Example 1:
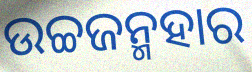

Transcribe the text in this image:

ଉଚ୍ଚଜନ୍ମହାର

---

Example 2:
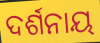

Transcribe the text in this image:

ଦର୍ଶନାୟ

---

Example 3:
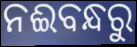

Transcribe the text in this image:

ନଈବନ୍ଧରୁ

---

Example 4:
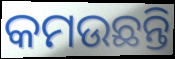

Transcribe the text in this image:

କମଉଛନ୍ତି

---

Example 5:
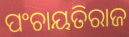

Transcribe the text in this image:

ପଂଚାୟତିରାଜ